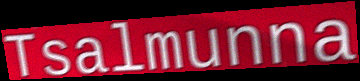
Tsalmunna